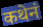
कथेनं